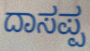
ದಾಸಪ್ಪ